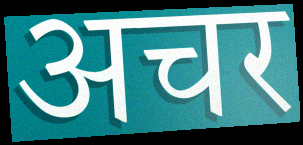
अचर